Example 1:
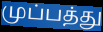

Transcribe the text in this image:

முப்பத்து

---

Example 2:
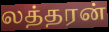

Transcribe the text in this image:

லத்தரன்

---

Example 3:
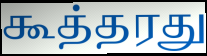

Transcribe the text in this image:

கூத்தரது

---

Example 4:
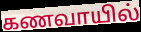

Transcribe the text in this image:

கணவாயில்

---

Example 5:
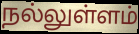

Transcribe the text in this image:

நல்லுள்ளம்